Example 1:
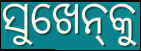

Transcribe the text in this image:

ସୁଖେନ୍‌କୁ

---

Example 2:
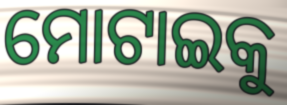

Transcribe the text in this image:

ମୋଟାଇକୁ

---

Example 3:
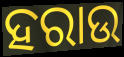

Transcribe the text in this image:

ହରାଉ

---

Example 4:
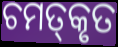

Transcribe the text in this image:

ଚମତ୍‍କୃତ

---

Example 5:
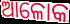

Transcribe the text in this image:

ଆଳୋକ